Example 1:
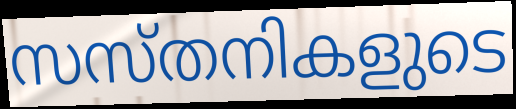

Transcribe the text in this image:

സസ്തനികളുടെ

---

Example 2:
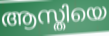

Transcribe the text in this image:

ആസ്തിയെ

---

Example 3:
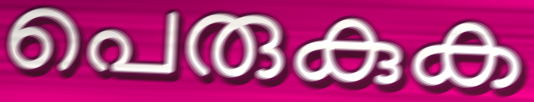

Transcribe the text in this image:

പെരുകുക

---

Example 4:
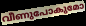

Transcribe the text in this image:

വീണുപോകുമോ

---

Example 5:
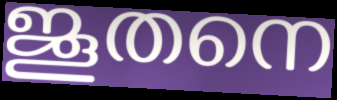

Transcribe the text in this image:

ജൂതനെ